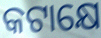
କଟାକ୍ଷେ